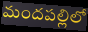
మందపల్లిలో